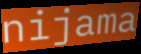
nijama